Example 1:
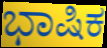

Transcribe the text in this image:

ಭಾಷಿಕ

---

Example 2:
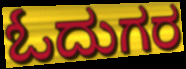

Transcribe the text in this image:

ಓದುಗರ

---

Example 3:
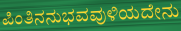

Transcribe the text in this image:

ಪಿಂತಿನನುಭವವುಳಿಯದೇನು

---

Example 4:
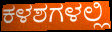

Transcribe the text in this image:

ಕಳಶಗಳಲ್ಲಿ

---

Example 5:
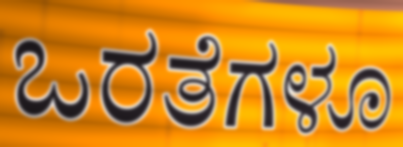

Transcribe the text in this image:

ಒರತೆಗಳೂ